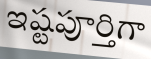
ఇష్టపూర్తిగా